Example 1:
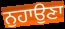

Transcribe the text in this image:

ਨੁਹਾਉਣਾ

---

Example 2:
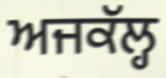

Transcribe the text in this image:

ਅਜਕੱਲ੍ਹ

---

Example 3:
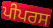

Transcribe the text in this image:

ਪੀਪਰਸ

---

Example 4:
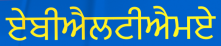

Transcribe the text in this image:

ਏਬੀਐਲਟੀਐਮਏ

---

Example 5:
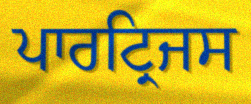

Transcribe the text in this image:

ਪਾਰਟ੍ਰਿਜਸ